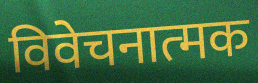
विवेचनात्‍मक